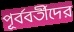
পূর্ববর্তীদের